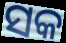
ସକ